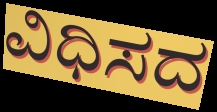
ವಿಧಿಸದ